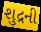
શુદ્રની